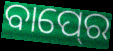
ବାପ୍‍ରେ